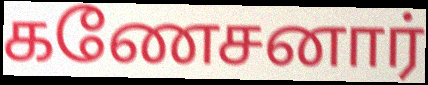
கணேசனார்